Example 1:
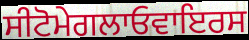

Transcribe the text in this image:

ਸੀਟੋਮੇਗਲਾਓਵਾਇਰਸ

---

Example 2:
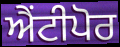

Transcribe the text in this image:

ਐਂਟੀਪੋਰ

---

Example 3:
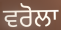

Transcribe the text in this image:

ਵਰੋਲਾ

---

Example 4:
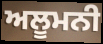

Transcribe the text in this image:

ਅਲੂਮਨੀ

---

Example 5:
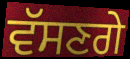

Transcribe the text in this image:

ਵੱਸਣਗੇ